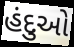
હંદુઓ